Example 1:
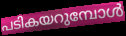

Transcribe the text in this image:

പടികയറുമ്പോൾ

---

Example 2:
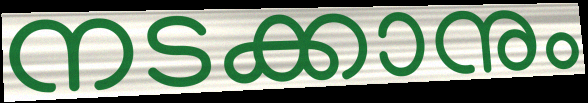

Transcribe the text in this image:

നടക്കാനും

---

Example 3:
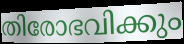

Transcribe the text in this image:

തിരോഭവിക്കും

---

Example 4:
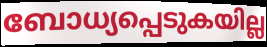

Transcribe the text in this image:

ബോധ്യപ്പെടുകയില്ല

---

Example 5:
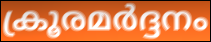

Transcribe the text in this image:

ക്രൂരമർദ്ദനം